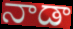
నాడా